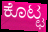
ಕೊಟ್ಟ